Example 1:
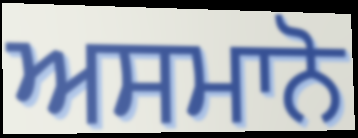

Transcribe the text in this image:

ਅਸਮਾਨੋ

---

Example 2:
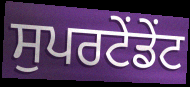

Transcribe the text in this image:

ਸੁਪਰਟੇਂਡੇਂਟ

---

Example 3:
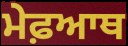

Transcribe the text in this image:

ਮੇਫ਼ਆਥ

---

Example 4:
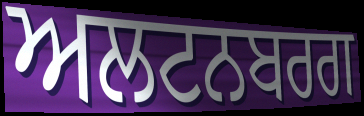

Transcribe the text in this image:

ਅਲਟਨਬਰਗ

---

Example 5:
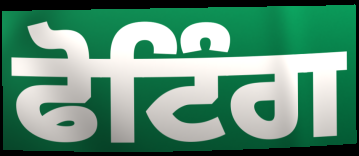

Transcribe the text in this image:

ਫੋਟਿੰਗ